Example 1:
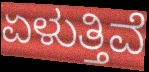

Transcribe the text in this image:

ಏಳುತ್ತಿವೆ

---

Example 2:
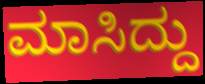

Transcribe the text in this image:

ಮಾಸಿದ್ದು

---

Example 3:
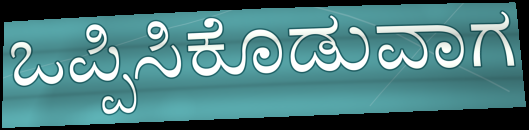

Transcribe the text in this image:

ಒಪ್ಪಿಸಿಕೊಡುವಾಗ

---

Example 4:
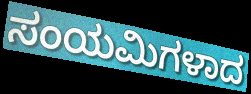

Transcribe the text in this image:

ಸಂಯಮಿಗಳಾದ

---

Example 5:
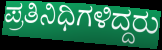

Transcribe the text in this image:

ಪ್ರತಿನಿಧಿಗಳಿದ್ದರು